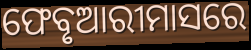
ଫେବୃଆରୀମାସରେ